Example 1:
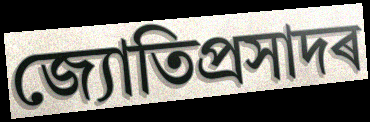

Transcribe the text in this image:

জ্যোতিপ্ৰসাদৰ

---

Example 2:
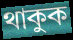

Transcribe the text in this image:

থাকুক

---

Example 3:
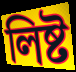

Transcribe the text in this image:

লিষ্ট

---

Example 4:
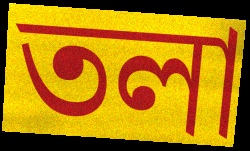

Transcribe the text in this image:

তলা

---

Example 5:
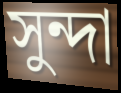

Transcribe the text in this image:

সুন্দা